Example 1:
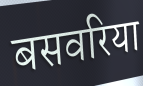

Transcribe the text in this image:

बसवरिया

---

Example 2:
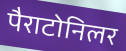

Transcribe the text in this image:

पैराटोनिलर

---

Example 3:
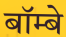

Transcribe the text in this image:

बॉम्बे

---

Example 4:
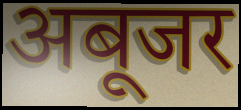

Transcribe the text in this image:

अबूजर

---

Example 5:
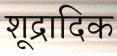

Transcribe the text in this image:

शूद्रादिक